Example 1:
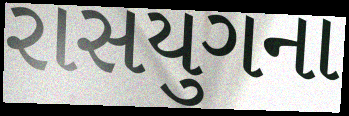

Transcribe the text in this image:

રાસયુગના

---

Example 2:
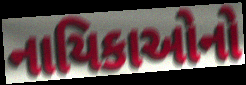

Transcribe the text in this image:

નાયિકાઓનો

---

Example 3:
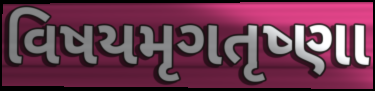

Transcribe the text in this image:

વિષયમૃગતૃષ્ણા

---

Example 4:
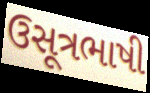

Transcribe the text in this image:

ઉસૂત્રભાષી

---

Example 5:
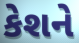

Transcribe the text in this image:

કેશને